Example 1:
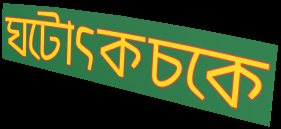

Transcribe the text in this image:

ঘটোৎকচকে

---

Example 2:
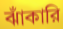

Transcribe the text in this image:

ঝাঁকারি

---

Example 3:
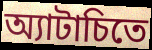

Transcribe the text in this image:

অ্যাটাচিতে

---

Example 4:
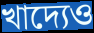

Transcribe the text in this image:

খাদ্যেও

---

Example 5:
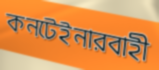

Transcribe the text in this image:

কনটেইনারবাহী